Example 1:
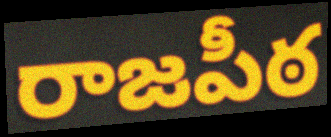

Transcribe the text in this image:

రాజపీఠ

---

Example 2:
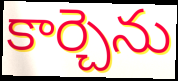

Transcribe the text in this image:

కార్చెను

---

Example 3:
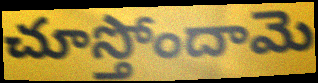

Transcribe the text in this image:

చూస్తోందామె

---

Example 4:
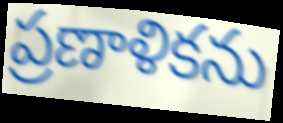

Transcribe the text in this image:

ప్రణాళికను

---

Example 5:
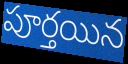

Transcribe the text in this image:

పూర్తయిన